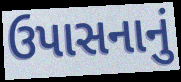
ઉપાસનાનું